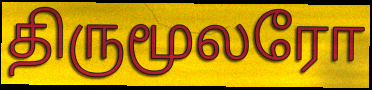
திருமூலரோ